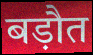
बड़ौत